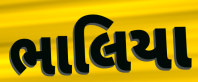
ભાલિયા